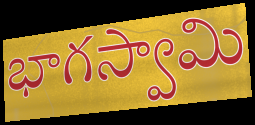
భాగస్వామి